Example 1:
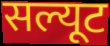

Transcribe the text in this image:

सल्यूट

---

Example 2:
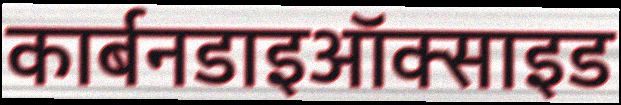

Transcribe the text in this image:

कार्बनडाइऑक्साइड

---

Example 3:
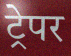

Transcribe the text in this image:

ट्रेपर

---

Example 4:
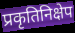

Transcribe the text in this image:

प्रकृतिनिक्षेप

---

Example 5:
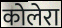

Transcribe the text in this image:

कोलेरा